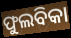
ଫୁଲବିକା